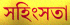
সহিংসতা